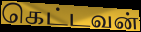
கெட்டவன்